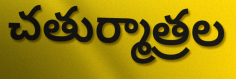
చతుర్మాత్రల